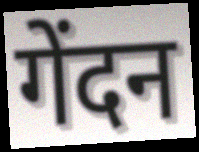
गेंदन